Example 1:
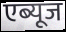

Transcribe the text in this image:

एब्यूज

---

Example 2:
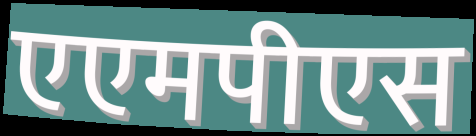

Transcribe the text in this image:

एएमपीएस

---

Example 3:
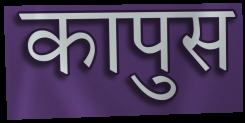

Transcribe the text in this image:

कापुस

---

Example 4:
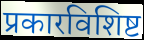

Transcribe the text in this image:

प्रकारविशिष्ट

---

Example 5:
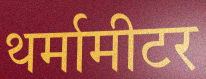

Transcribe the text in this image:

थर्मामीटर